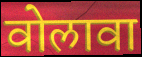
वोलावा